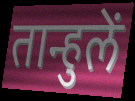
तान्हुलें